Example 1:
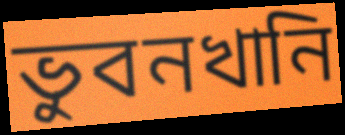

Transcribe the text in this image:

ভুবনখানি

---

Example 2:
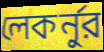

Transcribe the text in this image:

লেকর্নুর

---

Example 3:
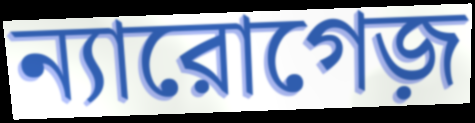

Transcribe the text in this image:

ন্যারোগেজ়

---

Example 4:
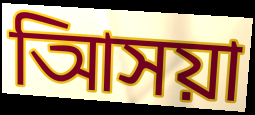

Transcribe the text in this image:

আিসয়া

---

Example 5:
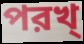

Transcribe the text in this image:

পরখ্